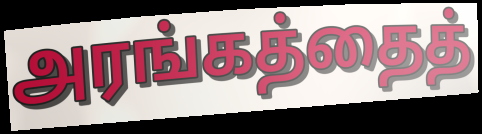
அரங்கத்தைத்